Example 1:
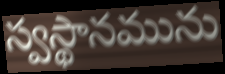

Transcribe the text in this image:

స్వస్థానమును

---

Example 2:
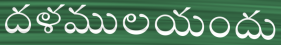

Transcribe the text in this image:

దళములయందు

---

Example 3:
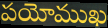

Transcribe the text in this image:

పయోముఖ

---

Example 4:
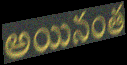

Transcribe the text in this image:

అయినంత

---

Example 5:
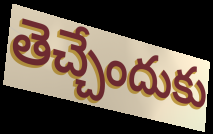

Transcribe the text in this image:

తెచ్చేందుకు